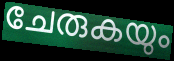
ചേരുകയും